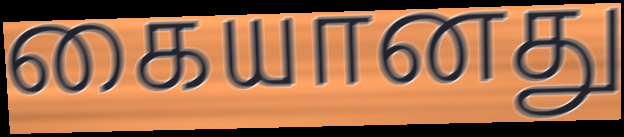
கையானது